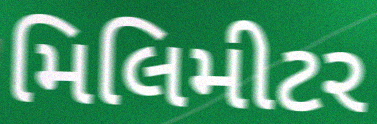
મિલિમીટર